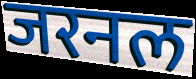
जरनल